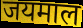
जयमाल